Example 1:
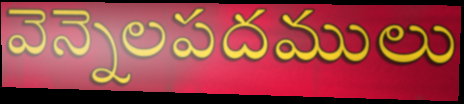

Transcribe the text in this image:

వెన్నెలపదములు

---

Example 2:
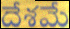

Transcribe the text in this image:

దేశమే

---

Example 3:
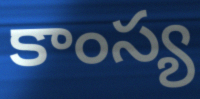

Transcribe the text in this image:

కాంస్య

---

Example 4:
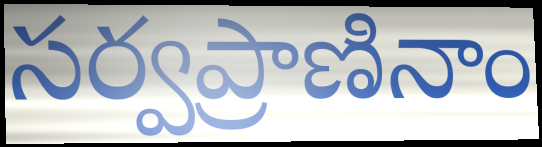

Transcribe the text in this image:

సర్వప్రాణినాం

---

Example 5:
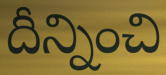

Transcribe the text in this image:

దీన్నించి